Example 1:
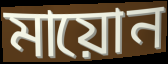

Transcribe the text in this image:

মায়োন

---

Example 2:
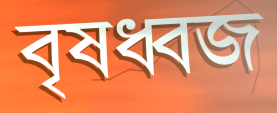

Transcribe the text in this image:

বৃষধ্বজ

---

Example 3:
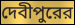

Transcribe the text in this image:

দেবীপুরের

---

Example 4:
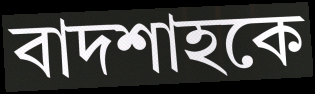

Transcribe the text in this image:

বাদশাহকে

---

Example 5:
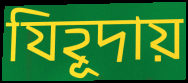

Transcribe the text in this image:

যিহূদায়